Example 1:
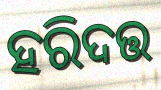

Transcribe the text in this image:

ହରିଦତ୍ତ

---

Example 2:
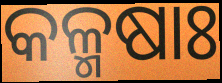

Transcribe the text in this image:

କଳ୍ମଷାଃ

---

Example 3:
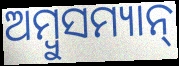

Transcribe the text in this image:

ଅମ୍ବୁସମ୍ୟାନ୍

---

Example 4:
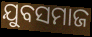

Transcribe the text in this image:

ଯୁବସମାଜ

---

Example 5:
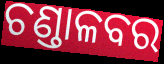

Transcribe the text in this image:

ଚଣ୍ଡାଳବର